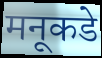
मनूकडे